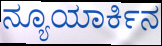
ನ್ಯೂಯಾರ್ಕಿನ